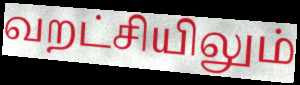
வறட்சியிலும்